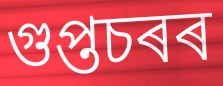
গুপ্তচৰৰ